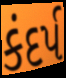
કંદર્પ